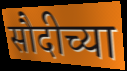
सौदीच्या